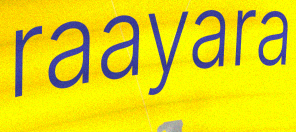
raayara